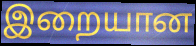
இறையான